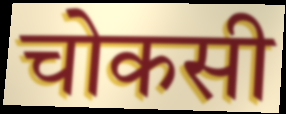
चोकसी